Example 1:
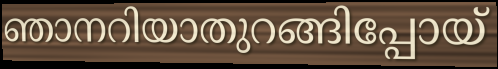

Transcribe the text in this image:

ഞാനറിയാതുറങ്ങിപ്പോയ്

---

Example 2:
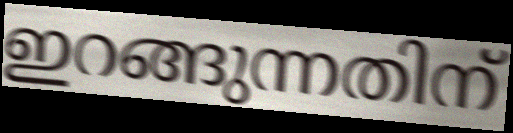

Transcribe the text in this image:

ഇറങ്ങുന്നതിന്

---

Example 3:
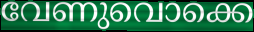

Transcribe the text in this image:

വേണുവൊക്കെ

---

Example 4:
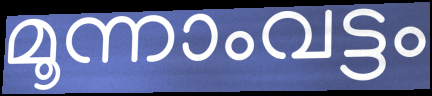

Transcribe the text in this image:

മൂന്നാംവട്ടം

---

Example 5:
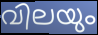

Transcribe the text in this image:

വിലയും